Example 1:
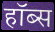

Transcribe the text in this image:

हॉब्स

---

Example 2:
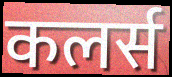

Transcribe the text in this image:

कलर्स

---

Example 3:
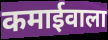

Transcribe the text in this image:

कमाईवाला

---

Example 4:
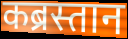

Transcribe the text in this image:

कब्रस्तान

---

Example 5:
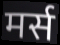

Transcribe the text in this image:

मर्स